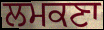
ਲਮਕਣਾ